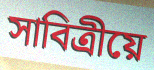
সাবিত্ৰীয়ে